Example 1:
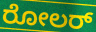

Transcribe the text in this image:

ರೋಲರ್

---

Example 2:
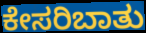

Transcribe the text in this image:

ಕೇಸರಿಬಾತು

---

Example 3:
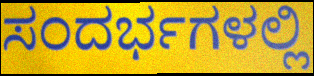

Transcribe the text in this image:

ಸಂದರ್ಭಗಳಲ್ಲಿ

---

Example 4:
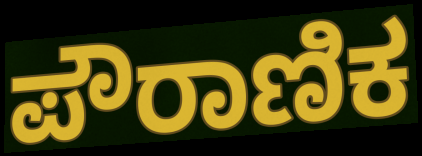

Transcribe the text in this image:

ಪೌರಾಣಿಕ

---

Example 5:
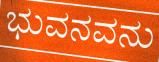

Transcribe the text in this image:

ಭುವನವನು